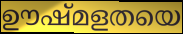
ഊഷ്മളതയെ